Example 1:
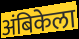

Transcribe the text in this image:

अंबिकेला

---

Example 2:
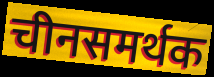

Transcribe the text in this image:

चीनसमर्थक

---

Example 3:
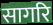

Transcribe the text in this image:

सागरि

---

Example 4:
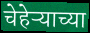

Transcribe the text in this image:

चेहेऱ्याच्या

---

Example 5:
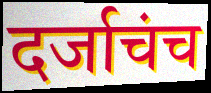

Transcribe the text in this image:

दर्जाचंच